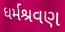
ધર્મશ્રવણ